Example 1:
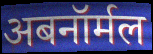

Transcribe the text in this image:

अबनॉर्मल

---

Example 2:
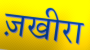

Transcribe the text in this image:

ज़खीरा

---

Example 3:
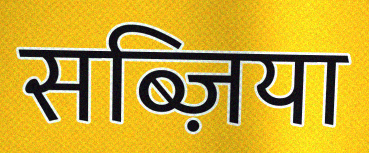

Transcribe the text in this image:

सब्ज़िया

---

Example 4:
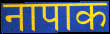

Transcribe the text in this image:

नापाक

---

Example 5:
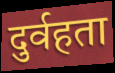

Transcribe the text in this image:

दुर्वहता